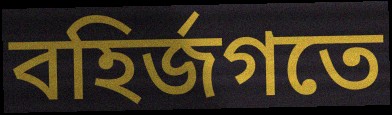
বহির্জগতে